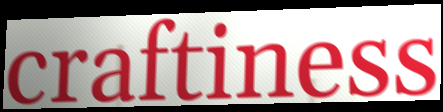
craftiness